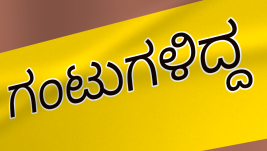
ಗಂಟುಗಳಿದ್ದ